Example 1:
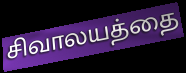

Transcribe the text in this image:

சிவாலயத்தை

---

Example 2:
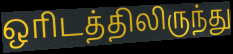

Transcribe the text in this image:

ஒரிடத்திலிருந்து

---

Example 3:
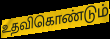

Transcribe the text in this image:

உதவிகொண்டும்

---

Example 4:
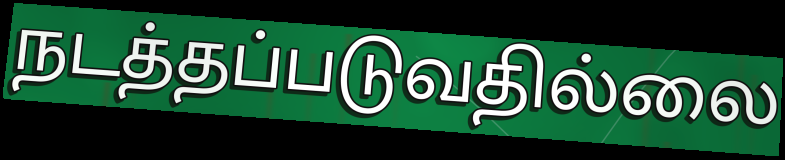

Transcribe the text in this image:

நடத்தப்படுவதில்லை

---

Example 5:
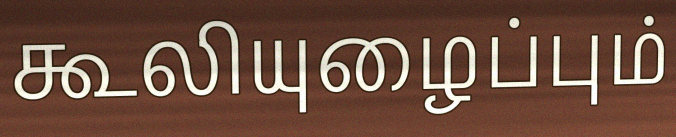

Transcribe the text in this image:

கூலியுழைப்பும்